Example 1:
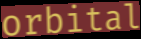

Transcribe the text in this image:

orbital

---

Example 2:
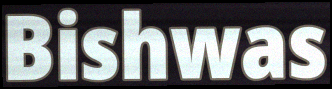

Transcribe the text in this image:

Bishwas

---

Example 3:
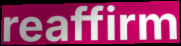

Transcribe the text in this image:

reaffirm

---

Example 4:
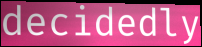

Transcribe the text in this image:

decidedly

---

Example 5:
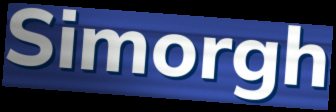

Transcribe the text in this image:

Simorgh